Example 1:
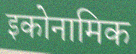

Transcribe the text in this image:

इकोनामिक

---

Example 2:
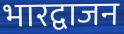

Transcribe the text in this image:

भारद्वाजन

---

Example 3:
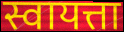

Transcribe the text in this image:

स्वायत्ता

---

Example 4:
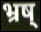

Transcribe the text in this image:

भ्रष्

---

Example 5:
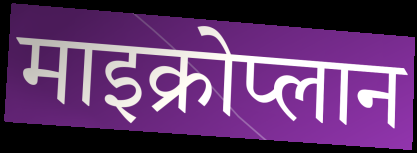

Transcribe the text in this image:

माइक्रोप्लान